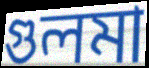
গুলমা